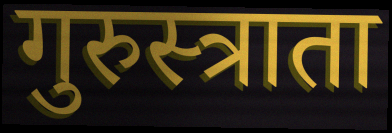
गुरुस्त्राता